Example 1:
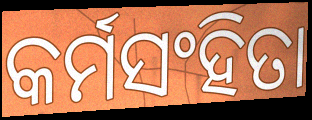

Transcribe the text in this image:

କର୍ମସଂହିତା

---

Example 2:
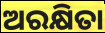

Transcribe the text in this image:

ଅରକ୍ଷିତା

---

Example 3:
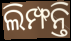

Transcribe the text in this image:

ଲିମ୍ଫନ୍ତି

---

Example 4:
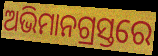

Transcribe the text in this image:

ଅଭିମାନଗ୍ରସ୍ତରେ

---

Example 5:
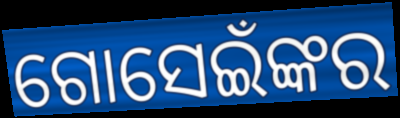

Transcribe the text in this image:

ଗୋସେଇଁଙ୍କର